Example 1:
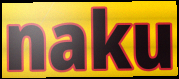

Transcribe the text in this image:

naku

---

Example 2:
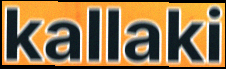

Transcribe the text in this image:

kallaki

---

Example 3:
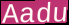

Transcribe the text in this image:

Aadu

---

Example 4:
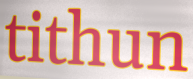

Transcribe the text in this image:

tithun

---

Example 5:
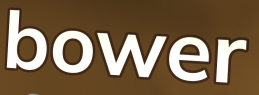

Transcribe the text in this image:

bower